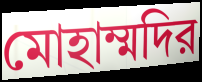
মোহাম্মদির